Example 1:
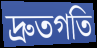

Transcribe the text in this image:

দ্রুতগতি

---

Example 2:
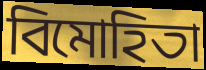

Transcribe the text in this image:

বিমোহিতা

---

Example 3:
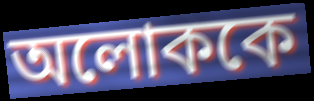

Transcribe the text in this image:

অলোককে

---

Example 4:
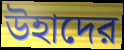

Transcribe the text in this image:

উহাদের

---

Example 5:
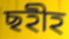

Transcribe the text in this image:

ছহীহ